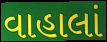
વાહાલાં